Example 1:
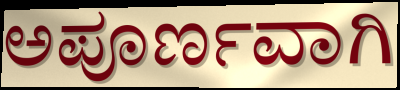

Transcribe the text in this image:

ಅಪೂರ್ಣವಾಗಿ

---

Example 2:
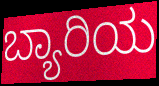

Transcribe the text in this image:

ಬ್ಯಾರಿಯ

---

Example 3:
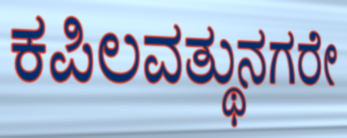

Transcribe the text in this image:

ಕಪಿಲವತ್ಥುನಗರೇ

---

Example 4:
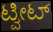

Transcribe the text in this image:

ಟ್ವೀಟ್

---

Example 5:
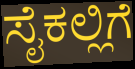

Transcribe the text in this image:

ಸೈಕಲ್ಲಿಗೆ